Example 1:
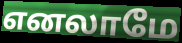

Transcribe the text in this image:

எனலாமே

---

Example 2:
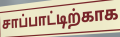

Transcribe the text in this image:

சாப்பாட்டிற்காக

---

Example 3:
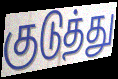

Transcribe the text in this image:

குடுத்து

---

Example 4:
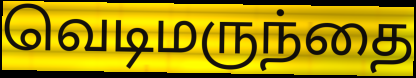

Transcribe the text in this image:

வெடிமருந்தை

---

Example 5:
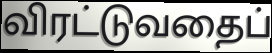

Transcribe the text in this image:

விரட்டுவதைப்